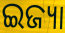
ଇଜ୍ୟା